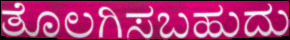
ತೊಲಗಿಸಬಹುದು